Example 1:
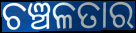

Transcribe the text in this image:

ଚଞ୍ଚଳତାର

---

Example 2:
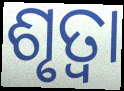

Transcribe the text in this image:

ଶୃତ୍ୱା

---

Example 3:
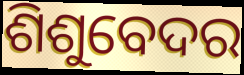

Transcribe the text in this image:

ଶିଶୁବେଦର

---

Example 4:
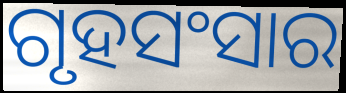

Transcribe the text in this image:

ଗୃହସଂସାର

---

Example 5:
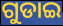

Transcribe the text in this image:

ଗୁଡାଇ